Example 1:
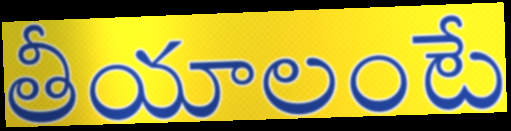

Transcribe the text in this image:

తీయాలంటే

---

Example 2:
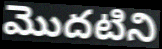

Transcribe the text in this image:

మొదటిని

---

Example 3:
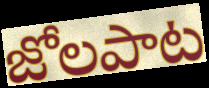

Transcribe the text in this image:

జోలపాట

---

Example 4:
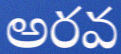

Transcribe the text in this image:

అరవ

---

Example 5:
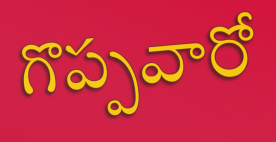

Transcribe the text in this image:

గొప్పవారో